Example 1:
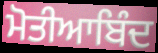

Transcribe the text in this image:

ਮੋਤੀਆਬਿੰਦ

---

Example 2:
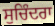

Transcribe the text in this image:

ਸੁਚਿੰਦਰਾ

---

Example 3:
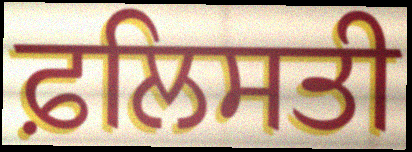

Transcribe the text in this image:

ਫ਼ਲਿਸਤੀ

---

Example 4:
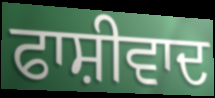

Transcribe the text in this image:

ਫਾਸ਼ੀਵਾਦ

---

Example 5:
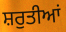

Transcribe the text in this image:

ਸ਼ਰੁਤੀਆਂ